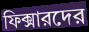
ফিক্সারদের